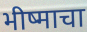
भीष्माचा